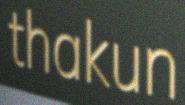
thakun